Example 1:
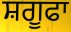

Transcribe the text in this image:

ਸ਼ਗੂਫਾ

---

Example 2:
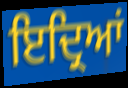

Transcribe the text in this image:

ਇਦ੍ਰਿਆਂ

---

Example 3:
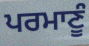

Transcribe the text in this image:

ਪਰਮਾਣੂੰ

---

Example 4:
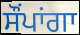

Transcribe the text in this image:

ਸੌਂਪਾਂਗਾ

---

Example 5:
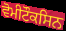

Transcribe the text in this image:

ਵੋਮੀਟੌਕਸਿਨ